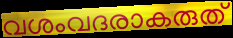
വശംവദരാകരുത്